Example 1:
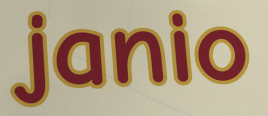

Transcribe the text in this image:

janio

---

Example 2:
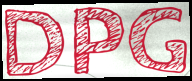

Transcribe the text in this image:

DPG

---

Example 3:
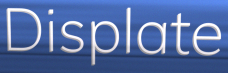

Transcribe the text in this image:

Displate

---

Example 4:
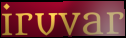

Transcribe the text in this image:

iruvar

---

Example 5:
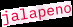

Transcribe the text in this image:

jalapeno